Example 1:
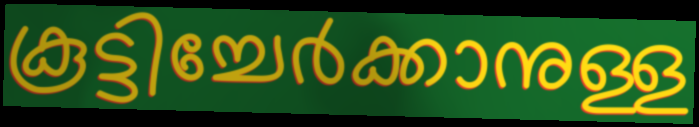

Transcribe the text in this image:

കൂട്ടിച്ചേർക്കാനുള്ള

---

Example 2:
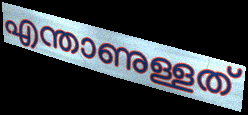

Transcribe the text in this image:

എന്താണുള്ളത്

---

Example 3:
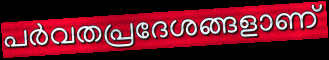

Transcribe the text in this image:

പർവതപ്രദേശങ്ങളാണ്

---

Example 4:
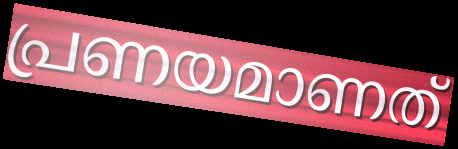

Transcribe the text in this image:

പ്രണയമാണത്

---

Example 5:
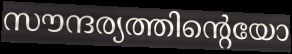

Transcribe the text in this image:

സൗന്ദര്യത്തിന്റെയോ